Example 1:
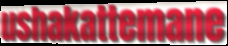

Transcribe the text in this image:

ushakattemane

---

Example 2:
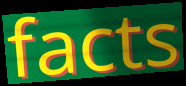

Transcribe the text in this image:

facts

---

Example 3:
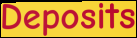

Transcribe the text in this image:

Deposits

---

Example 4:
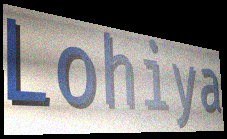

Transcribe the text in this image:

Lohiya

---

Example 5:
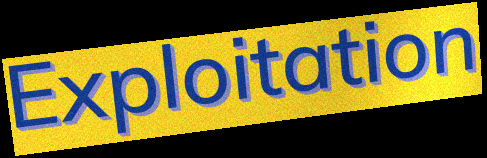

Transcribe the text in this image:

Exploitation